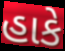
હાકે